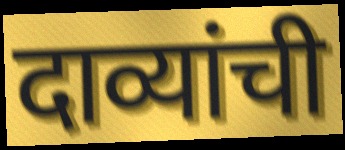
दाव्यांची